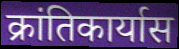
क्रांतिकार्यास